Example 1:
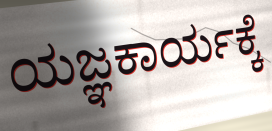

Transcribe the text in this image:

ಯಜ್ಞಕಾರ್ಯಕ್ಕೆ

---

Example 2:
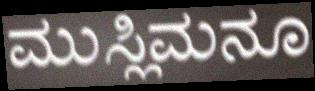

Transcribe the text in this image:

ಮುಸ್ಲಿಮನೂ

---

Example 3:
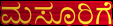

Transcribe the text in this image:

ಮಸೂರಿಗೆ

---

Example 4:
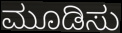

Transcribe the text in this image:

ಮೂಡಿಸು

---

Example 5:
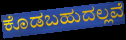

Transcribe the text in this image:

ಕೊಡಬಹುದಲ್ಲವೆ